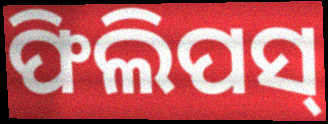
ଫିଲିପସ୍